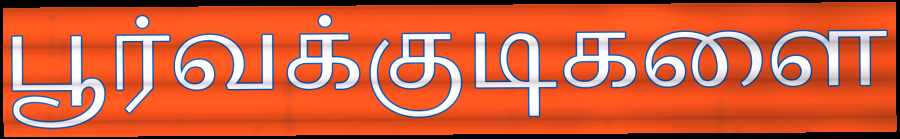
பூர்வக்குடிகளை